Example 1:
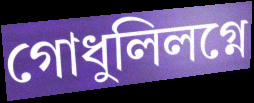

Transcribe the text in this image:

গোধুলিলগ্নে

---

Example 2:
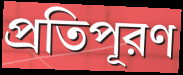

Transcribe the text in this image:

প্রতিপূরণ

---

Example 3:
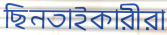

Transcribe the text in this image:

ছিনতাইকারীরা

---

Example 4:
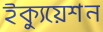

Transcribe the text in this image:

ইক্যুয়েশন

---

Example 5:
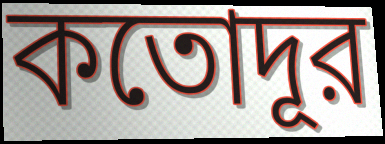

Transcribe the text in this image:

কতোদূর